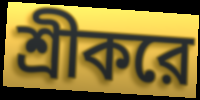
শ্রীকরে